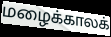
மழைக்காலக்